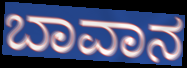
ಬಾವಾನ